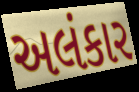
અલંકાર